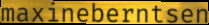
maxineberntsen